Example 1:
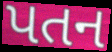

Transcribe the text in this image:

પતન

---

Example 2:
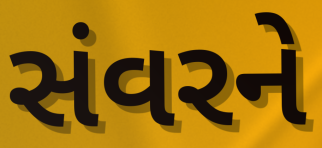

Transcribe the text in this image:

સંવરને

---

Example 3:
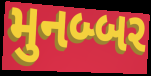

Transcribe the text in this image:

મુનબ્બર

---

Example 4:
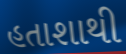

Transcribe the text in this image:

હતાશાથી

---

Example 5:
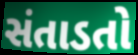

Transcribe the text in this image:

સંતાડતો